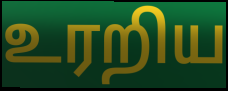
உரறிய